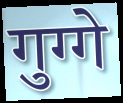
गुग्गे